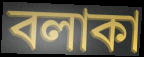
বলাকা